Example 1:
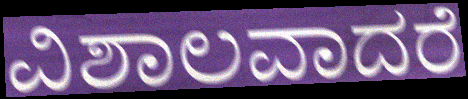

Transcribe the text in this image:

ವಿಶಾಲವಾದರೆ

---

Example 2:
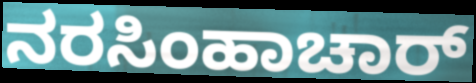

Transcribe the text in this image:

ನರಸಿಂಹಾಚಾರ್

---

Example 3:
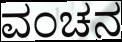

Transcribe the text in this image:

ವಂಚನ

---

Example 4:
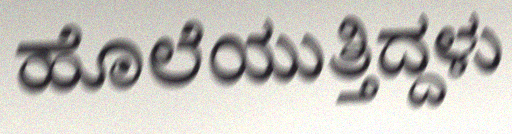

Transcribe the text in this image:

ಹೊಲೆಯುತ್ತಿದ್ದಳು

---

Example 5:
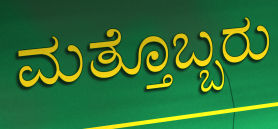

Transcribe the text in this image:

ಮತ್ತೊಬ್ಬರು